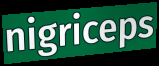
nigriceps